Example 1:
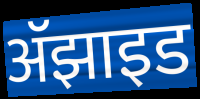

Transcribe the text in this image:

ॲझाइड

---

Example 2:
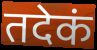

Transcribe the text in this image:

तदेकं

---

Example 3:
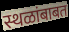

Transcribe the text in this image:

स्थळांबाबत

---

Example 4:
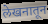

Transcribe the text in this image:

लेखनातून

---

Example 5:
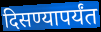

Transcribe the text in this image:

दिसण्यापर्यंत